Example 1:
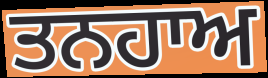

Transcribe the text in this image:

ਤਨਹਾਅ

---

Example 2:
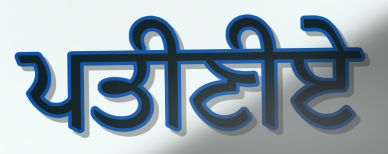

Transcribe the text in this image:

ਪਤੀਣੀਏ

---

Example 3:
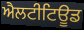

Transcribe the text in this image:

ਐਲਟੀਟਿਊਡ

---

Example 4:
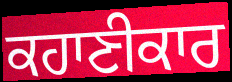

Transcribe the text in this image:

ਕਹਾਣੀਕਾਰ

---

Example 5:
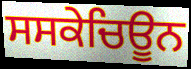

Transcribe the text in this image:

ਸਸਕੇਚਿਊਨ